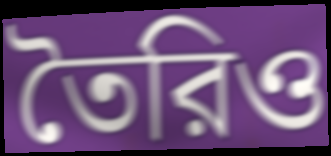
তৈরিও